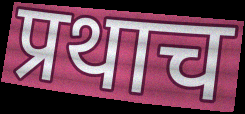
प्रथाच